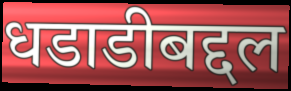
धडाडीबद्दल